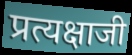
प्रत्यक्षाजी